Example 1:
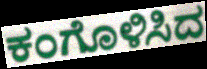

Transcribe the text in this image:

ಕಂಗೊಳಿಸಿದ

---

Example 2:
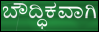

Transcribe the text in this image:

ಬೌದ್ಧಿಕವಾಗಿ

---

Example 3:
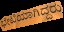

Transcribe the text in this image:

ಭೇಟಿಯಾಗಿದ್ದರು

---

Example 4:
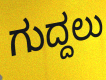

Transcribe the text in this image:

ಗುದ್ದಲು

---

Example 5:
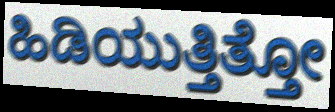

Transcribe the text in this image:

ಹಿಡಿಯುತ್ತಿತ್ತೋ